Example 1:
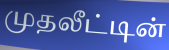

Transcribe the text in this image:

முதலீட்டின்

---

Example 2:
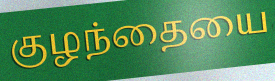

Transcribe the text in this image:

குழந்தையை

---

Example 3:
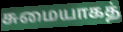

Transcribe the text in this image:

சுமையாகத்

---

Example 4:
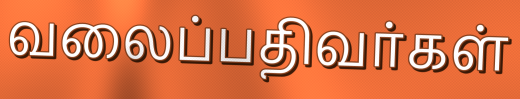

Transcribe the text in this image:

வலைப்பதிவர்கள்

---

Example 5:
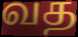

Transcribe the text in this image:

வத